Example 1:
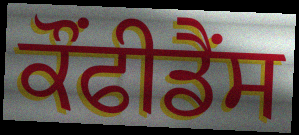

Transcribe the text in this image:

ਕੌਂਫੀਡੈਂਸ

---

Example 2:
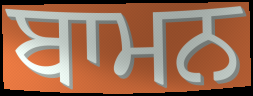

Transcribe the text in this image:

ਬਾਮਨ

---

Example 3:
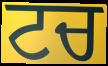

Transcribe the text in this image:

ਟਚ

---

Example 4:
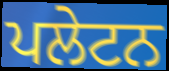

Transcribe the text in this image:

ਪਲੇਟਨ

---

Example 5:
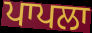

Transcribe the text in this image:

ਪਾਪਲਾ